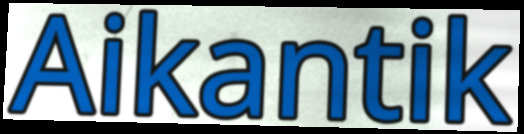
Aikantik